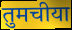
तुमचीया